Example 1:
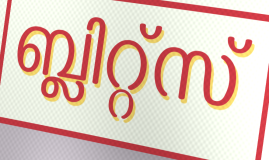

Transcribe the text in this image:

ബ്ലിറ്റ്സ്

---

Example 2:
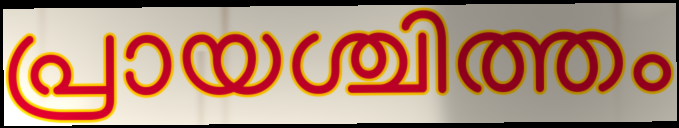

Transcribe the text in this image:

പ്രായശ്ചിത്തം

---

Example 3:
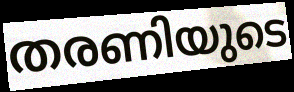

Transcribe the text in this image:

തരണിയുടെ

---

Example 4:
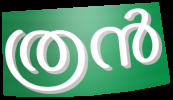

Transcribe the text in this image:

ത്രൻ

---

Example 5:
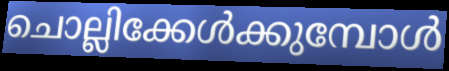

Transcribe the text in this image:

ചൊല്ലിക്കേൾക്കുമ്പോൾ